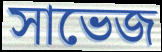
সাভেজ